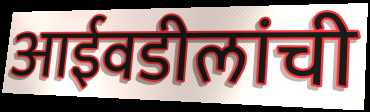
आईवडीलांची